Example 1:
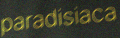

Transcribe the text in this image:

paradisiaca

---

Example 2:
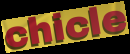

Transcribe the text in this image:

chicle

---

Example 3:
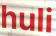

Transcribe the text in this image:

huli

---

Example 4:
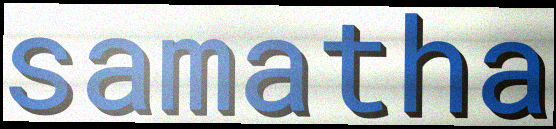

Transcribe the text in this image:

samatha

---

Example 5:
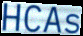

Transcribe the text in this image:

HCAs